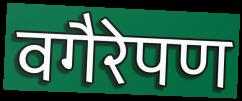
वगैरेपण